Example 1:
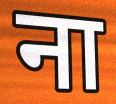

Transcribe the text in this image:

ना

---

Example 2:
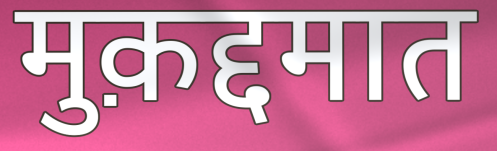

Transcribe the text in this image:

मुक़द्दमात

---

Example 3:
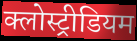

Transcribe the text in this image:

क्लोस्ट्रीडियम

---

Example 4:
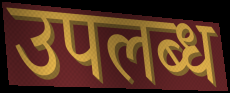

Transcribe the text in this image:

उपलब्ध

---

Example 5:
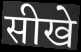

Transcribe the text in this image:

सीखे